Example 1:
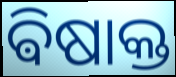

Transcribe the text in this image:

ଵିଷାକ୍ତ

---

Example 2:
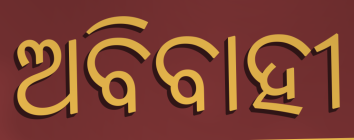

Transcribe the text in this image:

ଅବିବାହୀ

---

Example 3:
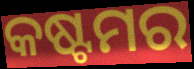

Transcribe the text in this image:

କଷ୍ଟମର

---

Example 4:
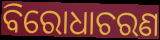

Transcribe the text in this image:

ବିରୋଧାଚରଣ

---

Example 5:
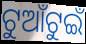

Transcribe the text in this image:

ଟୁଆଁଟୁଇଁ